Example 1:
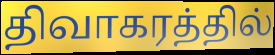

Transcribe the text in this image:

திவாகரத்தில்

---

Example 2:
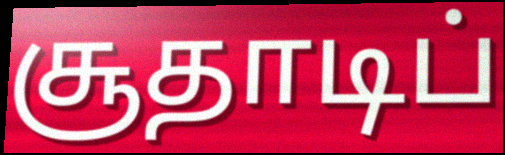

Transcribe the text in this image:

சூதாடிப்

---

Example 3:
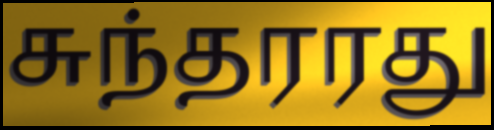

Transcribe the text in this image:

சுந்தரரது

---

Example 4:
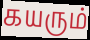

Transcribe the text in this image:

கயரும்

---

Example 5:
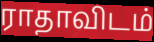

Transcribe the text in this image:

ராதாவிடம்